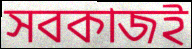
সবকাজই